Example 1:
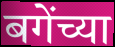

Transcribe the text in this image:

बगेंच्या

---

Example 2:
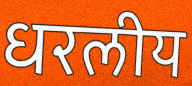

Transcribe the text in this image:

धरलीय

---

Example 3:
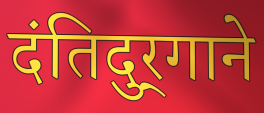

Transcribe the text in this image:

दंतिदुर्गाने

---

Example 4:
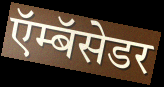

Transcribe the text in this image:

ऍम्बॅसेडर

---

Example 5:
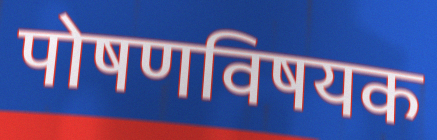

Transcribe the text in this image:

पोषणविषयक